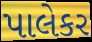
પાલેકર